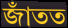
জাঁতত